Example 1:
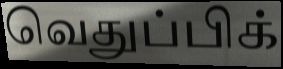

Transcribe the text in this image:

வெதுப்பிக்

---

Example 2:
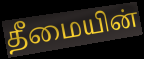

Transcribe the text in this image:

தீமையின்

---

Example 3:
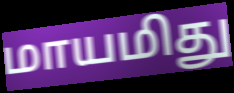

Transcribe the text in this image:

மாயமிது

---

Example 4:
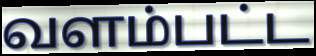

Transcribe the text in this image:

வளம்பட்ட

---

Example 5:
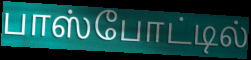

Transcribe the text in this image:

பாஸ்போட்டில்